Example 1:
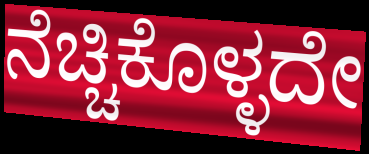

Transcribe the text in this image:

ನೆಚ್ಚಿಕೊಳ್ಳದೇ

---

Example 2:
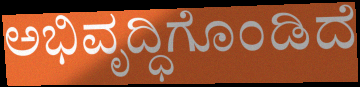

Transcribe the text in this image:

ಅಭಿವೃದ್ಧಿಗೊಂಡಿದೆ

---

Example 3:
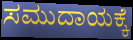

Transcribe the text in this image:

ಸಮುದಾಯಕ್ಕೆ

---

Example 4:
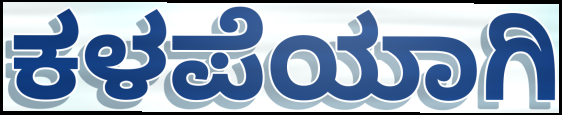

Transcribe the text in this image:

ಕಳಪೆಯಾಗಿ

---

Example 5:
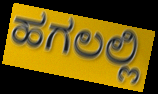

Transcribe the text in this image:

ಹಗಲಲ್ಲಿ